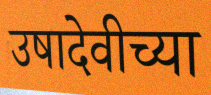
उषादेवीच्या